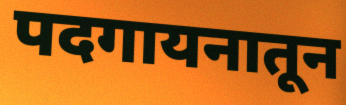
पदगायनातून